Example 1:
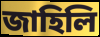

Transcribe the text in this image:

জাহিলি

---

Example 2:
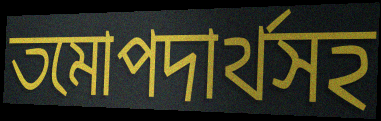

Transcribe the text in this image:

তমোপদার্থসহ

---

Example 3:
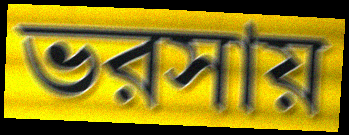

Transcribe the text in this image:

ভরসায়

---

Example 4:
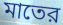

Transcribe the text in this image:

মাতের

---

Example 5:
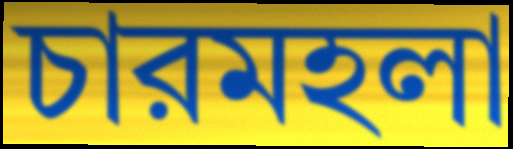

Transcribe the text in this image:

চারমহলা